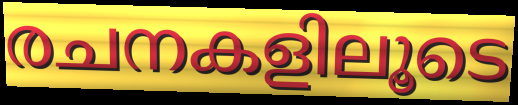
രചനകളിലൂടെ